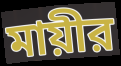
মায়ীর